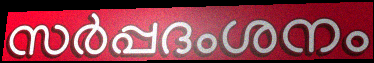
സർപ്പദംശനം